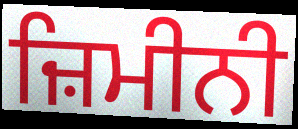
ਜ਼ਿਮੀਨੀ